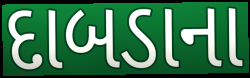
દાબડાના